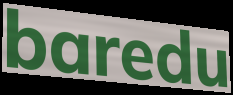
baredu